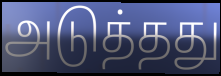
அடுத்தது